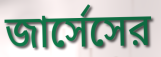
জার্সেসের